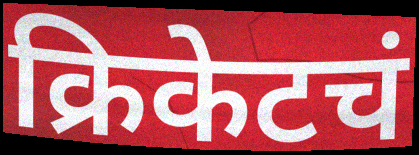
क्रिकेटचं